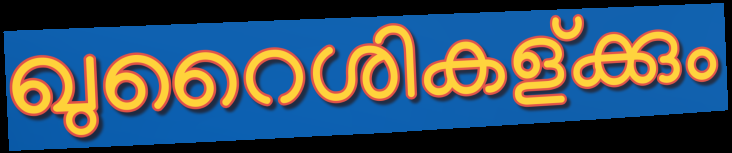
ഖുറൈശികള്ക്കും